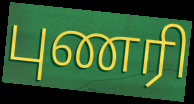
புணரி